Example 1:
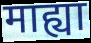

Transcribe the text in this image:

माह्या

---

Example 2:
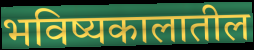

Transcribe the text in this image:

भविष्यकालातील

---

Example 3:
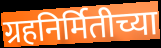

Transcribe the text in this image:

ग्रहनिर्मितीच्या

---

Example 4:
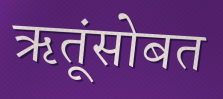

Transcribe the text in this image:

ऋतूंसोबत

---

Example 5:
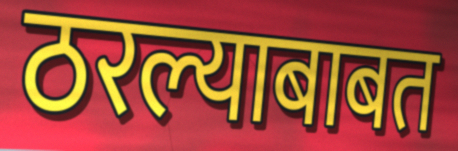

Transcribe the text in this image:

ठरल्याबाबत